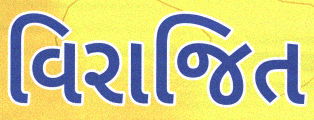
વિરાજિત